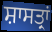
ਸ਼ਾਸਤ੍ਰਾਂ